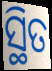
ସ୍ଥିତ